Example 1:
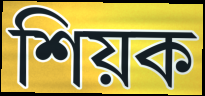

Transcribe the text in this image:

শিয়ক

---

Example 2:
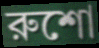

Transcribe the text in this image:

রুশো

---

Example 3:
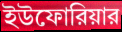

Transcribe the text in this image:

ইউফোরিয়ার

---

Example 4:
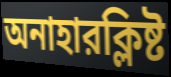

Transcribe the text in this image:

অনাহারক্লিষ্ট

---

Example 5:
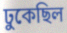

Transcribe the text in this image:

ঢুকেছিল